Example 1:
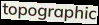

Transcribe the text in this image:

topographic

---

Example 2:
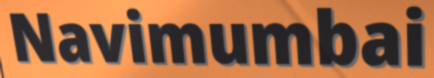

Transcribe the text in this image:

Navimumbai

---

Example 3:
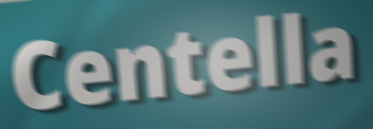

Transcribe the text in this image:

Centella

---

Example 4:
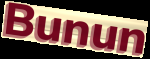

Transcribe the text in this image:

Bunun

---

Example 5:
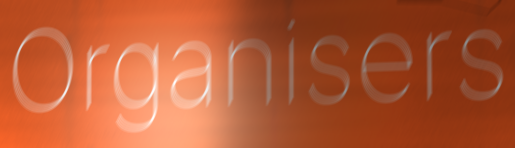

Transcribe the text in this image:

Organisers